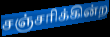
சஞ்சரிக்கின்ற